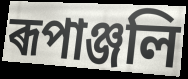
ৰূপাঞ্জলি